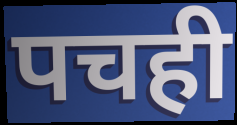
पचही